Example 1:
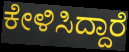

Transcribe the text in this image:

ಕೇಳಿಸಿದ್ದಾರೆ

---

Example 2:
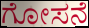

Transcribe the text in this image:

ಗೋಸನೆ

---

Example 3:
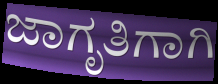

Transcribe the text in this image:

ಜಾಗೃತಿಗಾಗಿ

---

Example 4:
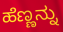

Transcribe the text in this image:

ಹೆಣ್ಣನ್ನು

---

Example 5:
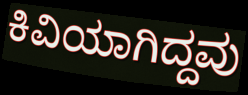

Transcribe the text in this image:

ಕಿವಿಯಾಗಿದ್ದವು